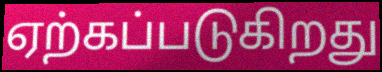
ஏற்கப்படுகிறது